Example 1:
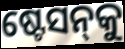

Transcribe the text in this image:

ଷ୍ଟେସନ୍‍କୁ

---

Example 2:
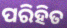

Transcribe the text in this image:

ପରିହିତ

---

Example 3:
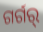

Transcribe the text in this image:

ଗର୍ଗର୍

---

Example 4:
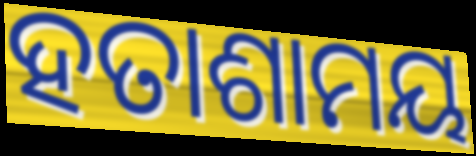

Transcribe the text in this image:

ହତାଶାମୟ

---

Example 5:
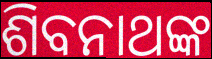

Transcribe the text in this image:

ଶିବନାଥଙ୍କ